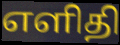
எளிதி